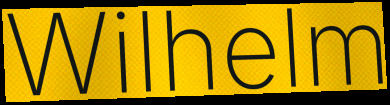
Wilhelm